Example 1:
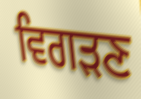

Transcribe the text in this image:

ਵਿਗੜਣ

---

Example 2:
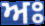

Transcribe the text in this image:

ਅਃ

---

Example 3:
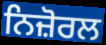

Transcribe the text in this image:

ਨਿਜ਼ੋਰਲ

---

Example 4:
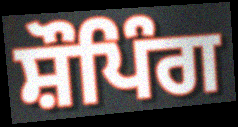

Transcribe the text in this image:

ਸ਼ੌਪਿੰਗ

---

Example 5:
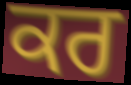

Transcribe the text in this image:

ਕਰ